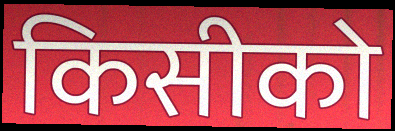
किसीको